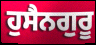
ਹੁਸੈਨਗੁਰੂ